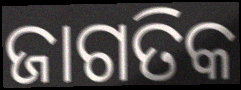
ଜାଗତିକ